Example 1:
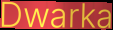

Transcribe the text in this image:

Dwarka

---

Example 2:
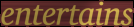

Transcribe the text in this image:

entertains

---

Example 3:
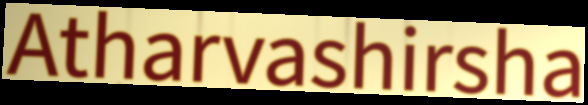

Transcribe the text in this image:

Atharvashirsha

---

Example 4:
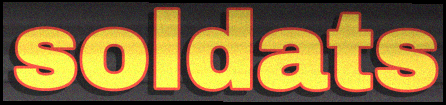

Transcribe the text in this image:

soldats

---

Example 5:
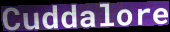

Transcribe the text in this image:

Cuddalore